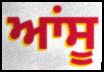
ਆਂਸੂ